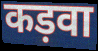
कड़वा